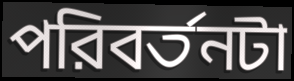
পরিবর্তনটা